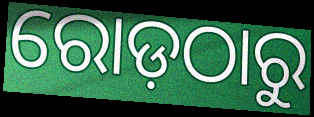
ରୋଡ଼ଠାରୁ